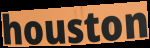
houston